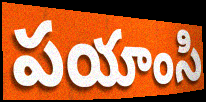
పయాంసి